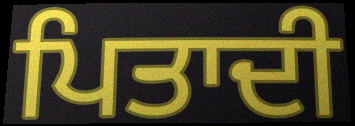
ਪਿਤਾਦੀ